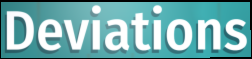
Deviations